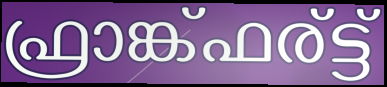
ഫ്രാങ്ക്ഫര്ട്ട്